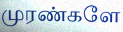
முரண்களே